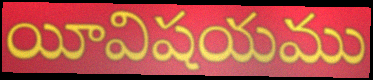
యీవిషయము